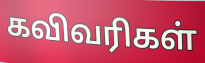
கவிவரிகள்